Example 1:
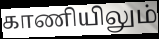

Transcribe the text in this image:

காணியிலும்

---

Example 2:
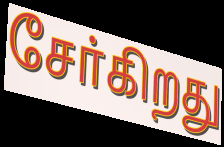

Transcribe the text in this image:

சேர்கிறது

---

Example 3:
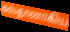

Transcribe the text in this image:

சுல்தானாகிய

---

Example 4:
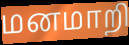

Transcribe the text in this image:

மனமாறி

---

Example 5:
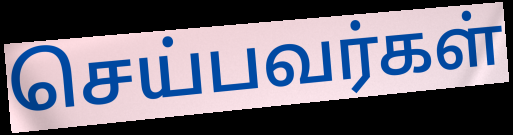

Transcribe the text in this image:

செய்பவர்கள்